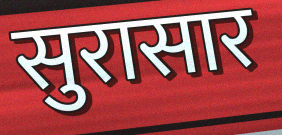
सुरासार